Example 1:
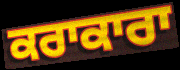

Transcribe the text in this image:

ਕਰਾਕਾਰਾ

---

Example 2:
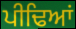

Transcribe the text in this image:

ਪੀਢਿਆਂ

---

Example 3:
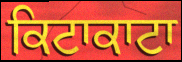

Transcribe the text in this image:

ਕਿਟਾਕਾਟਾ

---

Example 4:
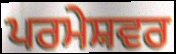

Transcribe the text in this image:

ਪਰਮੇਸ਼ਵਰ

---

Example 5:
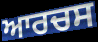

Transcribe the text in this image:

ਆਰਚਸ